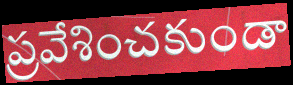
ప్రవేశించకుండా